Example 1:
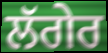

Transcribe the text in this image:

ਲੱਗੇਰ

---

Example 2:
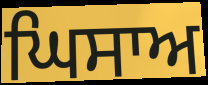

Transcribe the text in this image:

ਘਿਸਾਅ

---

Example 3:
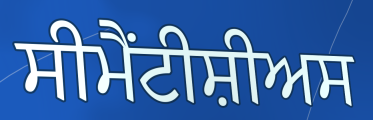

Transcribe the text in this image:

ਸੀਮੈਂਟੀਸ਼ੀਅਸ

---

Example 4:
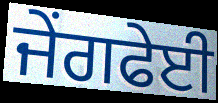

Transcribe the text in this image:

ਜੇਂਗਫੇਈ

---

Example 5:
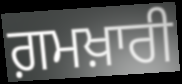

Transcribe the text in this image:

ਗ਼ਮਖ਼ਾਰੀ